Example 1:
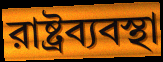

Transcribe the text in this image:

রাষ্ট্রব্যবস্থা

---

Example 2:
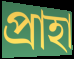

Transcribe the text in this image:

প্রাহা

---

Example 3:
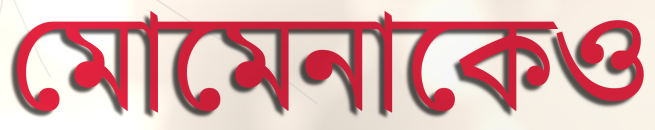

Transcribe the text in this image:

মোমেনাকেও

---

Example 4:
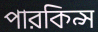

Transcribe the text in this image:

পারকিন্স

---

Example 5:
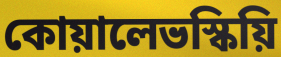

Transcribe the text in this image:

কোয়ালেভস্কিয়ি